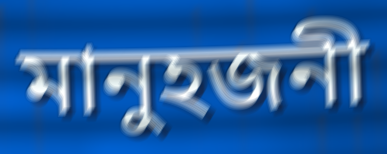
মানুহজনী